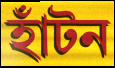
হাঁটন